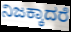
ನಿಜಕ್ಕಾದರೆ